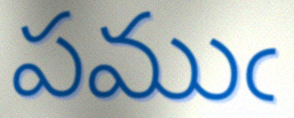
పముఁ